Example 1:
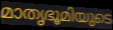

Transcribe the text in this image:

മാതൃഭൂമിയുടെ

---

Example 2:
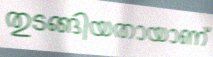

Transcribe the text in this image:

തുടങ്ങിയതായാണ്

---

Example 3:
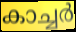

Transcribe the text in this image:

കാച്ചർ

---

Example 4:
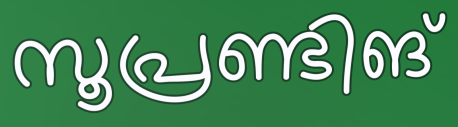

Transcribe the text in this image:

സൂപ്രണ്ടിങ്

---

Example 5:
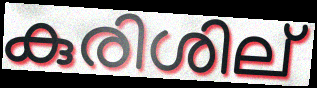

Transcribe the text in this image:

കുരിശില്